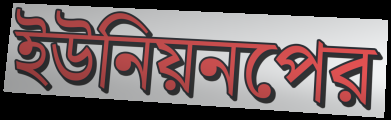
ইউনিয়নপের